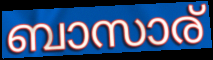
ബാസാര്